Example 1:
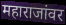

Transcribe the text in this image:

महाराजांवर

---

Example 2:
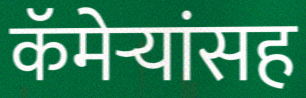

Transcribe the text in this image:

कॅमेऱ्यांसह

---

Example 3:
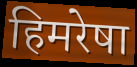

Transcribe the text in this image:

हिमरेषा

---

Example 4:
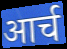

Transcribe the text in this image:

आर्च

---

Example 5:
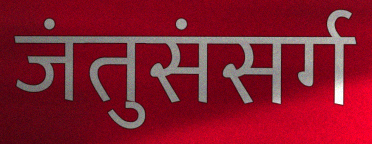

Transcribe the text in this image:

जंतुसंसर्ग